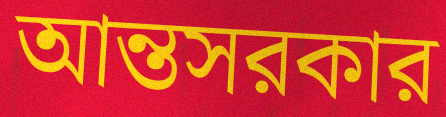
আন্তসরকার